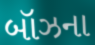
બૉઝના